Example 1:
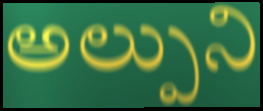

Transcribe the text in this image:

అల్పుని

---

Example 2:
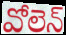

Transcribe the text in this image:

వోలెన్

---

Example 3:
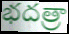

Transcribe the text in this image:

భదత్రా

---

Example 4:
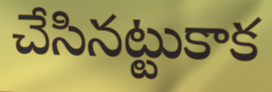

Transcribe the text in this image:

చేసినట్టుకాక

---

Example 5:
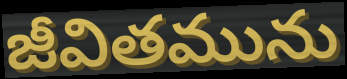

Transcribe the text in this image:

జీవితమును